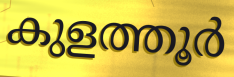
കുളത്തൂർ